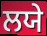
ਲਯੇ